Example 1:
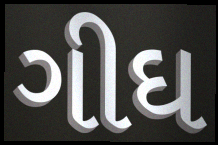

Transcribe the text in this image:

ગીઘ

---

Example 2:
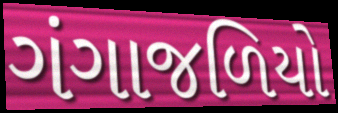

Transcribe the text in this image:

ગંગાજળિયો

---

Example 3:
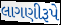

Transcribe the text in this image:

લાગણીરૂપે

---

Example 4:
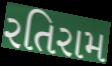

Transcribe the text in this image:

રતિરામ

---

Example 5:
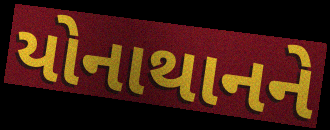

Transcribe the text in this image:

યોનાથાનને